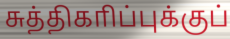
சுத்திகரிப்புக்குப்